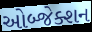
ઓબ્જેક્શન